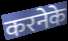
करनेके